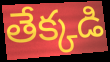
తేక్కడి